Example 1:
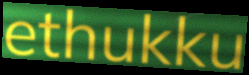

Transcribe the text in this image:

ethukku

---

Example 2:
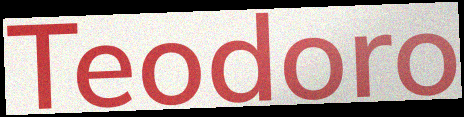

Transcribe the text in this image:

Teodoro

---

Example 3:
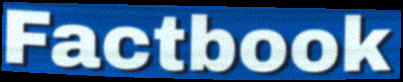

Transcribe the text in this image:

Factbook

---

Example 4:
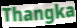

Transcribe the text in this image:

Thangka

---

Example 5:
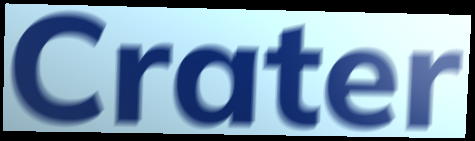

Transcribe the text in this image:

Crater